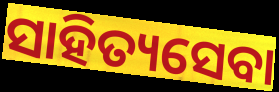
ସାହିତ୍ୟସେବା